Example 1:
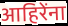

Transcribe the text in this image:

आहिरेंना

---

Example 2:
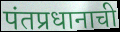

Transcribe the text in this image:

पंतप्रधानाची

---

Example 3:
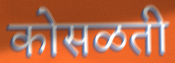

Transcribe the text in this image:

कोसळती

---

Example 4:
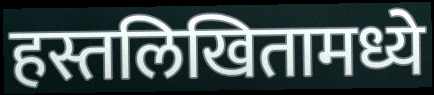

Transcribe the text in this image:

हस्तलिखितामध्ये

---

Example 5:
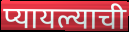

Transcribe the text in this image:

प्यायल्याची